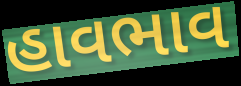
હાવભાવ